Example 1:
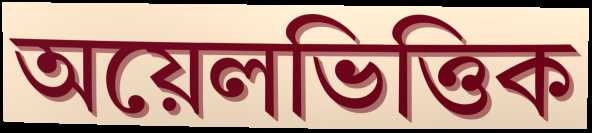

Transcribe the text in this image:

অয়েলভিত্তিক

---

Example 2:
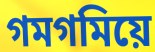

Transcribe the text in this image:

গমগমিয়ে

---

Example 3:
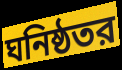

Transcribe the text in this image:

ঘনিষ্ঠতর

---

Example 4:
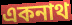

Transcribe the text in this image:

একনাথ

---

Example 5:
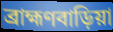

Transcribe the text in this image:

ব্রাহ্মণবাড়িয়া